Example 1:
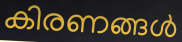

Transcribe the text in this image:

കിരണങ്ങൾ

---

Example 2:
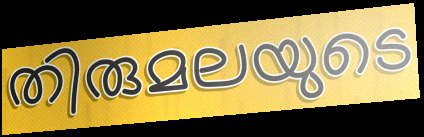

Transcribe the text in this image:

തിരുമലയുടെ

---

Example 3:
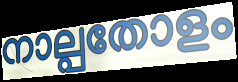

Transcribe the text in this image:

നാല്പതോളം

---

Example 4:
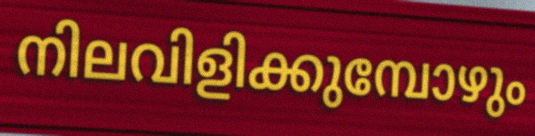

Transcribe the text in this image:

നിലവിളിക്കുമ്പോഴും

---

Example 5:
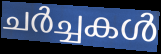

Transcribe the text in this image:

ചർച്ചകൾ